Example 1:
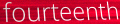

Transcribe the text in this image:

fourteenth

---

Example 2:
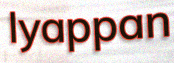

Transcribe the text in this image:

Iyappan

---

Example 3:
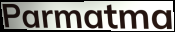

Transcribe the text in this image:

Parmatma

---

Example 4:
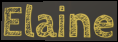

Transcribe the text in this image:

Elaine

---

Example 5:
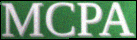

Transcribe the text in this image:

MCPA